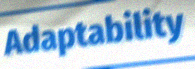
Adaptability